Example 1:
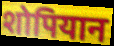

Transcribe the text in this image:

शोपियान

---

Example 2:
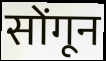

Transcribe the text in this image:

सोंगून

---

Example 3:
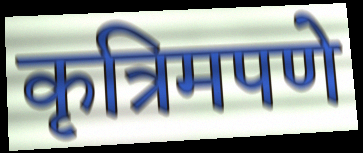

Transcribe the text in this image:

कृत्रिमपणे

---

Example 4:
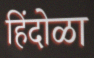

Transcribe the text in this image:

हिंदोळा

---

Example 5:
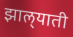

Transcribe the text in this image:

झाल्याती